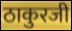
ठाकुरजी